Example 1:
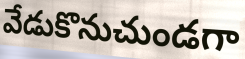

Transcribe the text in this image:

వేడుకొనుచుండగా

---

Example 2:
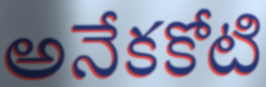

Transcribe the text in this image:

అనేకకోటి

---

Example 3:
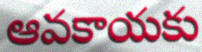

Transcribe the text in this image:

ఆవకాయకు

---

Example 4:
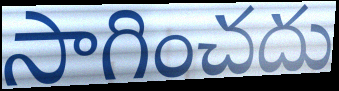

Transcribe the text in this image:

సాగించదు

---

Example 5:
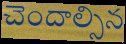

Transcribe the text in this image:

చెందాల్సిన